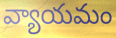
వ్యాయమం